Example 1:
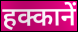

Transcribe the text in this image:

हक्कानें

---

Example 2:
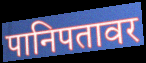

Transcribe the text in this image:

पानिपतावर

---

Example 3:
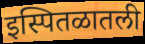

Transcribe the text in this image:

इस्पितळातली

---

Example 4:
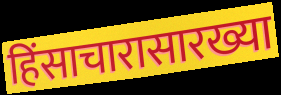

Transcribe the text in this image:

हिंसाचारासारख्या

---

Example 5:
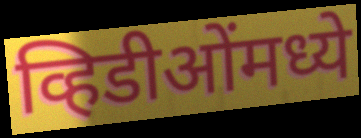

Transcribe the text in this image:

व्हिडीओंमध्ये